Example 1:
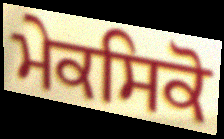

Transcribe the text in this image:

ਮੇਕਸਿਕੋ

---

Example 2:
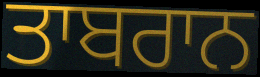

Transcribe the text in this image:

ਤਾਬਰਾਨ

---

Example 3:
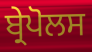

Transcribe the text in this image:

ਬ੍ਰੇਪੋਲਸ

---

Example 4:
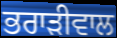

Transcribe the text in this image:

ਭਰਾੜੀਵਾਲ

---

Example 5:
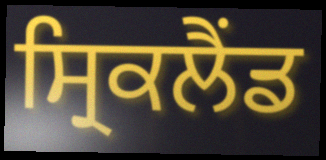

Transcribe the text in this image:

ਸ੍ਰਿਕਲੈਂਡ